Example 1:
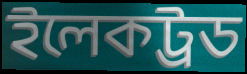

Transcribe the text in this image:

ইলেকট্রড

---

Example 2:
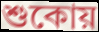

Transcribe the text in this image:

শুকোয়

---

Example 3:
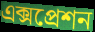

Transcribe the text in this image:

এক্সপ্রেশন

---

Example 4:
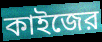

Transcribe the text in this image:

কাইজের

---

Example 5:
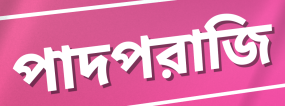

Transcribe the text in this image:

পাদপরাজি